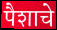
पैशाचे